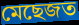
মেছেজত